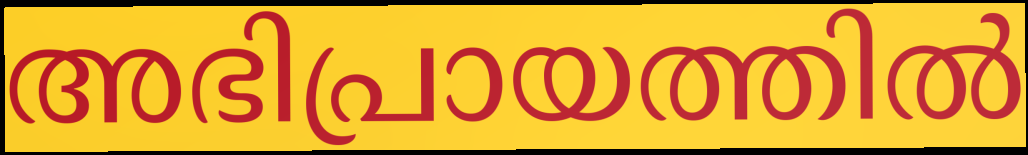
അഭിപ്രായത്തിൽ